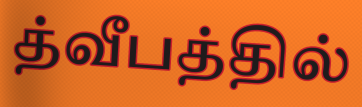
த்வீபத்தில்